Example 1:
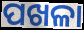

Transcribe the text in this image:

ପଖଳା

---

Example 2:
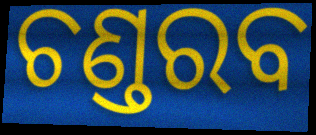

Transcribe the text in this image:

ଚଣ୍ଡରବ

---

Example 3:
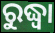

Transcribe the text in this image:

ରୁଦ୍ଧ୍ୱା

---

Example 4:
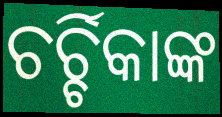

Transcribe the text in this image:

ଚର୍ଚ୍ଚିକାଙ୍କ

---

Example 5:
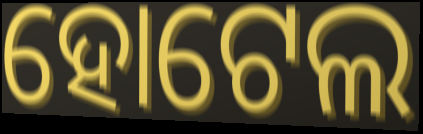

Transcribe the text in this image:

ହୋଟେଲ